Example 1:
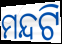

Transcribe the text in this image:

ମନ୍ଦଟି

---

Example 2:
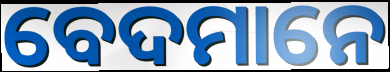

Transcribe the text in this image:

ବେଦମାନେ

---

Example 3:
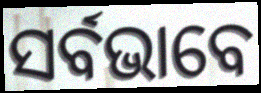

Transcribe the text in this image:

ସର୍ବଭାବେ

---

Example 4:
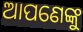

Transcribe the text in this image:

ଆପଣେଙ୍କୁ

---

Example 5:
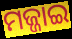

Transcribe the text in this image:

ମଜ୍ଜାଇ